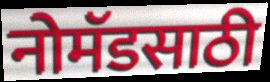
नोमॅडसाठी